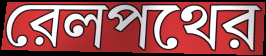
রেলপথের